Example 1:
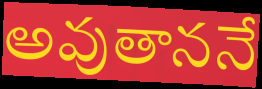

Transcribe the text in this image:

అవుతాననే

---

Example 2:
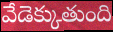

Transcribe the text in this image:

వేడెక్కుతుంది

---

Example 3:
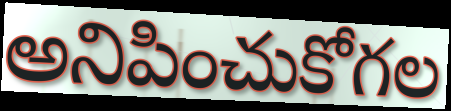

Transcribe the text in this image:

అనిపించుకోగల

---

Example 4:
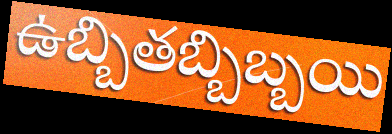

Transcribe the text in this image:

ఉబ్బితబ్బిబ్బయి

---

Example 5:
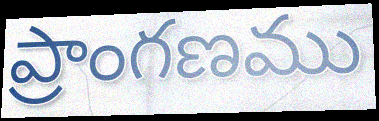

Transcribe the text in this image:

ప్రాంగణము